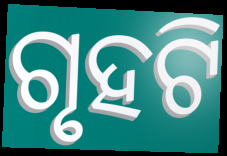
ଗୃହଟି